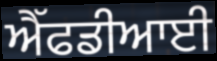
ਐੱਫਡੀਆਈ